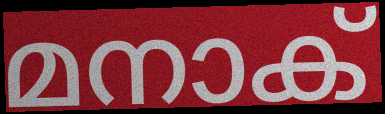
മനാക്